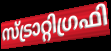
സ്ട്രാറ്റിഗ്രഫി